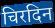
चिरदिन